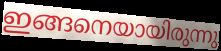
ഇങ്ങനെയായിരുന്നു